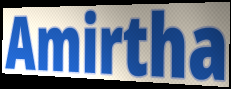
Amirtha